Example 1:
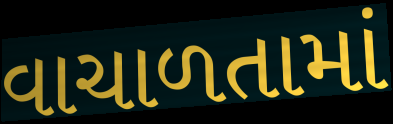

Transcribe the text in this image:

વાચાળતામાં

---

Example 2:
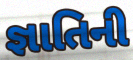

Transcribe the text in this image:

જ્ઞાતિની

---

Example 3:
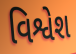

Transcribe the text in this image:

વિશ્વેશ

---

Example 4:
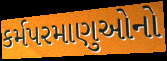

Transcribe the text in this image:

કર્મપરમાણુઓનો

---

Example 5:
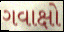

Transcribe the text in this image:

ગવાક્ષો